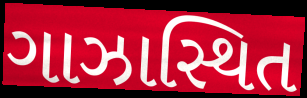
ગાઝાસ્થિત